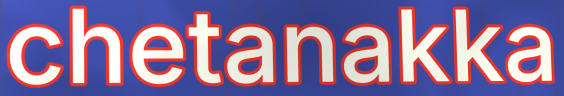
chetanakka